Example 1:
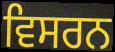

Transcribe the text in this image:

ਵਿਸਰਨ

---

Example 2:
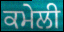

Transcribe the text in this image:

ਕਮੇਲੀ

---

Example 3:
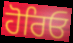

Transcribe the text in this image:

ਹੋਰਿਓ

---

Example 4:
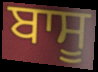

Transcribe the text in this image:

ਬਾਸੂ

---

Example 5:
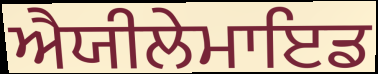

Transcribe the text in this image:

ਐਯੀਲੇਮਾਇਡ